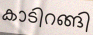
കാടിറങ്ങി